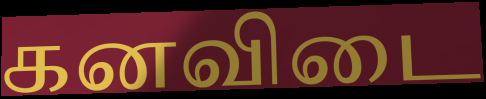
கனவிடை